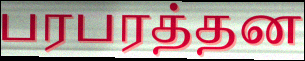
பரபரத்தன